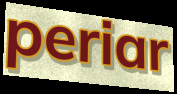
periar